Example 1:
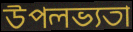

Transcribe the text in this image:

উপলভ্যতা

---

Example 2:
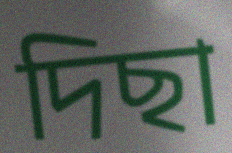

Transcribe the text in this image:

দিছা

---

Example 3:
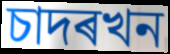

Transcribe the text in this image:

চাদৰখন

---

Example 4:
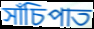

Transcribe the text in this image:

সাঁচিপাত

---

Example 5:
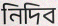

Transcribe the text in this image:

নিদিব